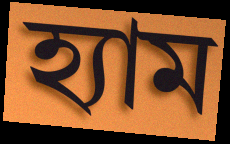
হ্যাম